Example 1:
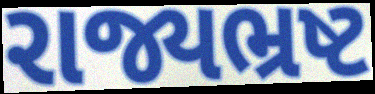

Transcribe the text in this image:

રાજ્યભ્રષ્ટ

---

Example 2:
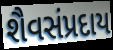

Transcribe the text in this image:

શૈવસંપ્રદાય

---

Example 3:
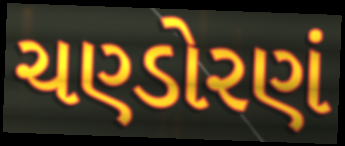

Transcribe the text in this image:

ચણ્ડોરણં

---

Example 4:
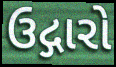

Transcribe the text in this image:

ઉદ્ગારો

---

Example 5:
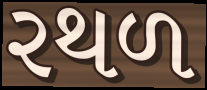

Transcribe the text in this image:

રથળ